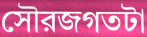
সৌরজগতটা